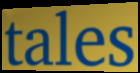
tales